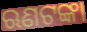
ଋଣଟଙ୍କା